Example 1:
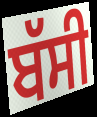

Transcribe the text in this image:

ਬੱਸੀ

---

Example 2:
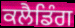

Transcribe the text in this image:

ਕਲੈਡਿੰਗ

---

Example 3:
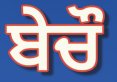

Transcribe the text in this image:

ਬੇਚੌ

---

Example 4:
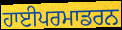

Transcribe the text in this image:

ਹਾਈਪਰਮਾਡਰਨ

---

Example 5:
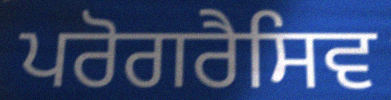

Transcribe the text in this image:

ਪਰੋਗਰੈਸਿਵ